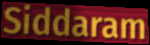
Siddaram